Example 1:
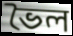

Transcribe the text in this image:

ভৈল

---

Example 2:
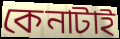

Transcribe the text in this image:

কেনাটাই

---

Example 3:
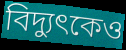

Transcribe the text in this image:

বিদ্যুৎকেও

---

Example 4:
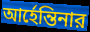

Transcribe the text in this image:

আর্হেন্তিনার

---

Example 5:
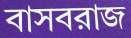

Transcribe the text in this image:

বাসবরাজ